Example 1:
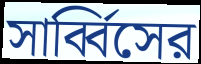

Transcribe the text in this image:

সার্ব্বিসের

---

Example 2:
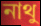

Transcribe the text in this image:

নাথু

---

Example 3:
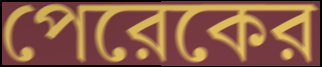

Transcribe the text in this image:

পেরেকের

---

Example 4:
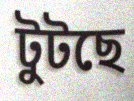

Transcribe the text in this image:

টুটছে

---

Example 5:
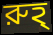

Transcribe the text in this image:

রুহ্